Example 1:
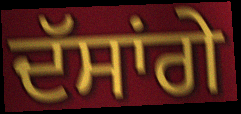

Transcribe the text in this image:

ਦੱਸਾਂਗੇ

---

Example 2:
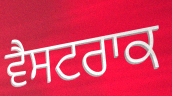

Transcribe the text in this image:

ਵੈਸਟਰਾਕ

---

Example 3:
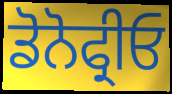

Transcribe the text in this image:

ਡੋਨੋਫ੍ਰੀਓ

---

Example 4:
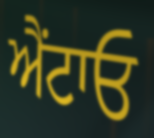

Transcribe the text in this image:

ਐਂਟਾਓ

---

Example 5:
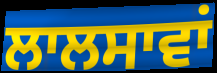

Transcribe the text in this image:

ਲਾਲਸਾਵਾਂ